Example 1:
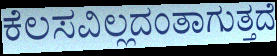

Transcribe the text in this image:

ಕೆಲಸವಿಲ್ಲದಂತಾಗುತ್ತದೆ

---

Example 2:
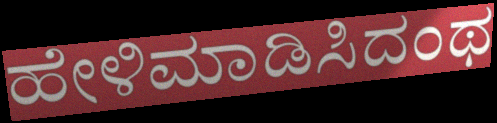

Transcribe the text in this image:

ಹೇಳಿಮಾಡಿಸಿದಂಥ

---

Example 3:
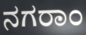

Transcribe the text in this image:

ನಗರಾಂ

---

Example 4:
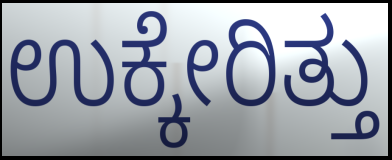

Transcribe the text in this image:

ಉಕ್ಕೇರಿತ್ತು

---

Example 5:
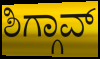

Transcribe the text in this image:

ಶಿಗ್ಗಾವ್